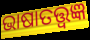
ଭାଷାତତ୍ତ୍ୱଜ୍ଞ